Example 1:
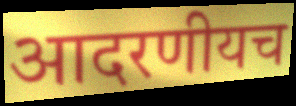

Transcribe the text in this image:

आदरणीयच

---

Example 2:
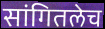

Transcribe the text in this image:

सांगितलेच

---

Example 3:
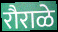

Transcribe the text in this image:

रौराळे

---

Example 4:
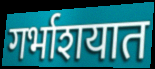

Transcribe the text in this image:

गर्भाशयात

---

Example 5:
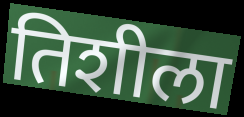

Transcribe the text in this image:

तिशीला